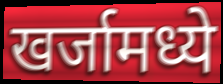
खर्जामध्ये